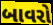
બાવરો